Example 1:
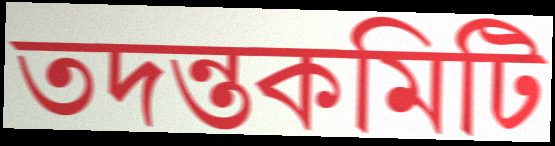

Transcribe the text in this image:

তদন্তকমিটি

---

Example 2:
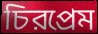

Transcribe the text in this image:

চিরপ্রেম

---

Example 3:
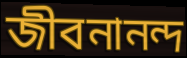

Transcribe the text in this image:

জীবনানন্দ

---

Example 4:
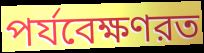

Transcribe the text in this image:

পর্যবেক্ষণরত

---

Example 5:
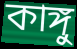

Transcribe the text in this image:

কাঙ্গু